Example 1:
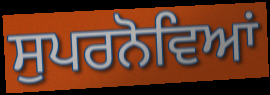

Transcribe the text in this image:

ਸੁਪਰਨੋਵਿਆਂ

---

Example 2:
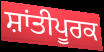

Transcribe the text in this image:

ਸ਼ਾਂਤੀਪੂਰਕ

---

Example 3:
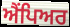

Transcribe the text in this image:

ਐਂਪਿਅਰ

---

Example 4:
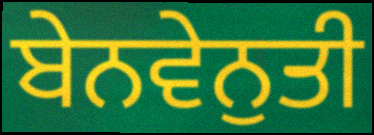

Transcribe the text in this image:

ਬੇਨਵੇਨੁਤੀ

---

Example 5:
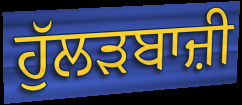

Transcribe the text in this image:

ਹੁੱਲੜਬਾਜ਼ੀ